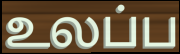
உலப்ப